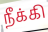
நீக்கி